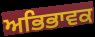
ਅਭਿਭਾਵਕ